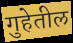
गुहेतील